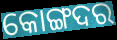
କୋଙ୍ଗଦର